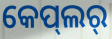
କେପ୍‌ଲର୍